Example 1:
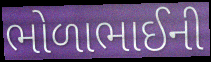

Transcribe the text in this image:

ભોળાભાઈની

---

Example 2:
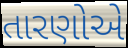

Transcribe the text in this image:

તારણોએ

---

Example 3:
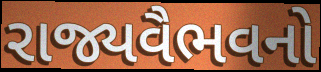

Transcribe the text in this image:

રાજ્યવૈભવનો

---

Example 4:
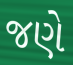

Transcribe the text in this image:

જણે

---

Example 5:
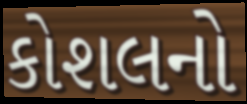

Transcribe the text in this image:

કોશલનો